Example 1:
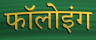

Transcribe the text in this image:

फॉलोइंग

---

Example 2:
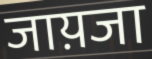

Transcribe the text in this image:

जाय़जा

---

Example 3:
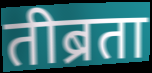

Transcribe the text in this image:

तीब्रता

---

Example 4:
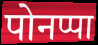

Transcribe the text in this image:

पोनप्‍पा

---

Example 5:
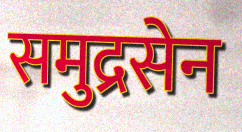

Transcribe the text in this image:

समुद्रसेन